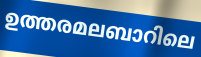
ഉത്തരമലബാറിലെ